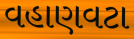
વહાણવટા